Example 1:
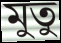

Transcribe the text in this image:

মুতু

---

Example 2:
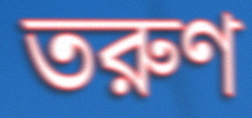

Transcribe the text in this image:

তরুণ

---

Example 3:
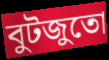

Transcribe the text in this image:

বুটজুতো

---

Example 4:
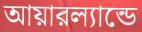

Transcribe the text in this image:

আয়ারল্যান্ডে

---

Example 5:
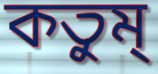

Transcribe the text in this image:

কতুম্